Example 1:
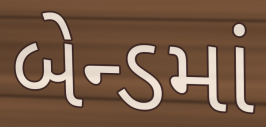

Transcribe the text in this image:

બેન્ડમાં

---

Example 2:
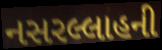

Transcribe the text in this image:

નસરલ્લાહની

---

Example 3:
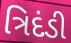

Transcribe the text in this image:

ત્રિદંડી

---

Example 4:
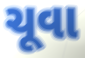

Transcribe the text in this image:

ચૂવા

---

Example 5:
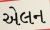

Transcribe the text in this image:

એલન